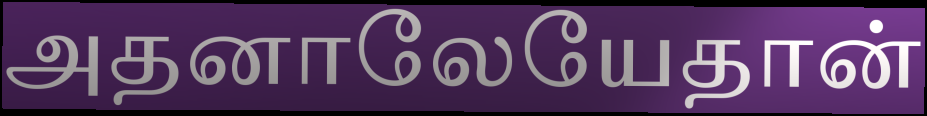
அதனாலேயேதான்